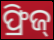
ଫ୍ରିଜ୍